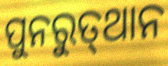
ପୁନରୁତ୍‍ଥାନ